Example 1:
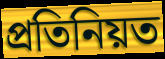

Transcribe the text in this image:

প্রতিনিয়ত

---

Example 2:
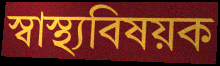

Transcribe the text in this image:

স্বাস্থ্যবিষয়ক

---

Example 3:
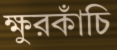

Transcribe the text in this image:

ক্ষুরকাঁচি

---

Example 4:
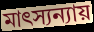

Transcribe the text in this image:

মাৎস্যন্যায়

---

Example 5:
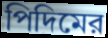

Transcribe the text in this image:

পিদিমের